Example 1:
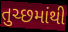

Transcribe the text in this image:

તુચ્છમાંથી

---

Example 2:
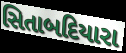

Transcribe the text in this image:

સિતાબદિયારા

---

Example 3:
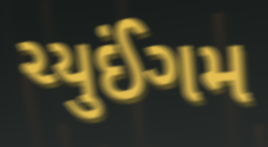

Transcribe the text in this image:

ચ્યુઈંગમ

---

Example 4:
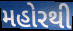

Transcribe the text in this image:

મહોરથી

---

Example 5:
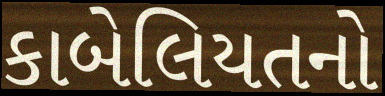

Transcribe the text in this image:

કાબેલિયતનો